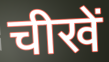
चीखें